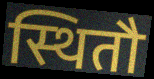
स्थितौ